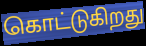
கொட்டுகிறது